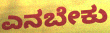
ಎನಬೇಕು